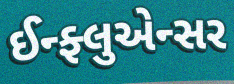
ઈન્ફ્લુએન્સર